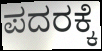
ಪದರಕ್ಕೆ